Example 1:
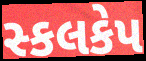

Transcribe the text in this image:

સ્કલકેપ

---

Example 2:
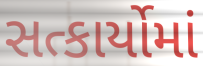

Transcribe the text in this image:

સત્કાર્યોમાં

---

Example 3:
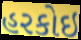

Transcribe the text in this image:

હરકોઇ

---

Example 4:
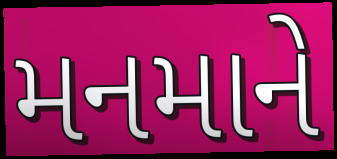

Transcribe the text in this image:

મનમાને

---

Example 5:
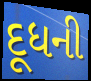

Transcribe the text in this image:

દૂધની